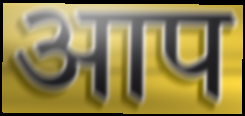
आप